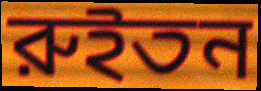
রুইতন